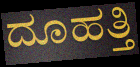
ದೂಹತ್ತಿ